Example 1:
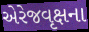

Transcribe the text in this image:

એરેજવૃક્ષના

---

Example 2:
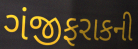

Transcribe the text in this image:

ગંજીફરાકની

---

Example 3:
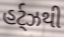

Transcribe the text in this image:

હર્ટ્ઝથી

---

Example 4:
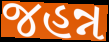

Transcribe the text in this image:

જહન્ન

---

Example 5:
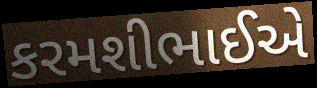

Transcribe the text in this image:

કરમશીભાઈએ